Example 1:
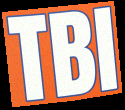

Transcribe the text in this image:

TBI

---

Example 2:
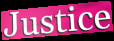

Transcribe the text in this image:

Justice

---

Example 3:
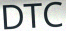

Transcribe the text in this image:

DTC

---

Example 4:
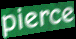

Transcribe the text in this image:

pierce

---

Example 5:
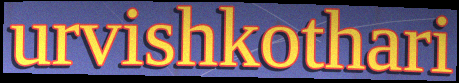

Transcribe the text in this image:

urvishkothari